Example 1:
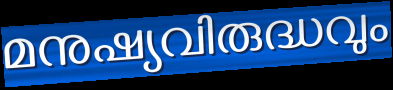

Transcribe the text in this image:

മനുഷ്യവിരുദ്ധവും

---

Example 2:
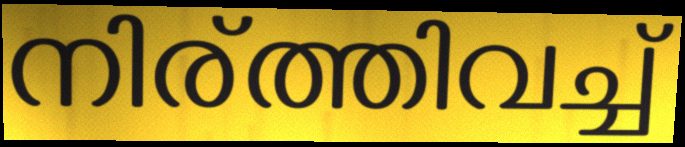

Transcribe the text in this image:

നിര്ത്തിവച്ച്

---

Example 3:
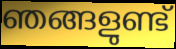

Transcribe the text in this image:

ഞങ്ങളുണ്ട്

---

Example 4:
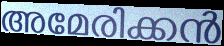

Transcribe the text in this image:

അമേരിക്കൻ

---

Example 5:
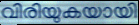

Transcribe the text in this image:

വിരിയുകയായി